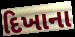
દિખાના